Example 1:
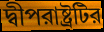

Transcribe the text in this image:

দ্বীপরাষ্ট্রটির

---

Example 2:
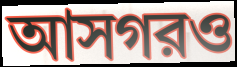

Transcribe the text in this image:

আসগরও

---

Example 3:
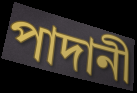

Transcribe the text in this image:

পাদানী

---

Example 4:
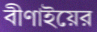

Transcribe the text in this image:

বীণাইয়ের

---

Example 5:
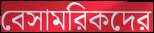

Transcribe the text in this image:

বেসামরিকদের